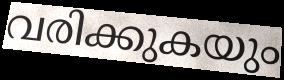
വരിക്കുകയും